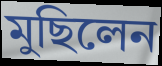
মুছিলেন